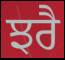
ਝਰੈ